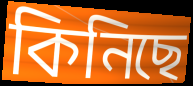
কিনিছে